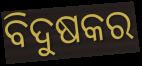
ବିଦୁଷକର